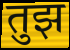
तुझ